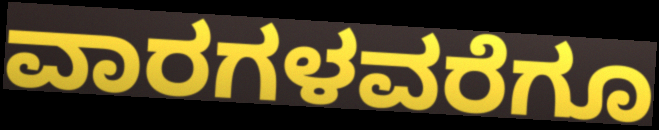
ವಾರಗಳವರೆಗೂ